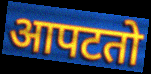
आपटतो